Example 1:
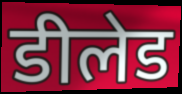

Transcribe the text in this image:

डीलेड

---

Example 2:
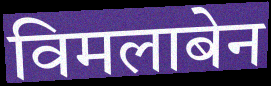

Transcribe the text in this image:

विमलाबेन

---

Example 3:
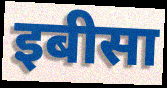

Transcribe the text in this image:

इबीसा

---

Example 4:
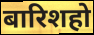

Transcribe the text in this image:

बारिशहो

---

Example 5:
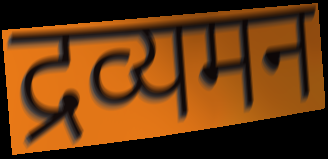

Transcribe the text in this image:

द्रव्यमन